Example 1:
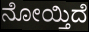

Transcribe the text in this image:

ನೋಯ್ತಿದೆ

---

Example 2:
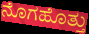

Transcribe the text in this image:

ನೊಗಹೊತ್ತು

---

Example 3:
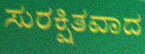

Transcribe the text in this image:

ಸುರಕ್ಷಿತವಾದ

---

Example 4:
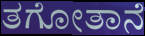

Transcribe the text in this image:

ತಗೋತಾನೆ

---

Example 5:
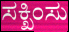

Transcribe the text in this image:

ಸಕ್ಖಿಂಸು